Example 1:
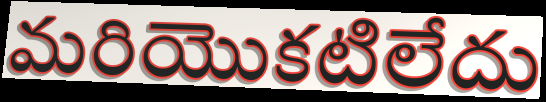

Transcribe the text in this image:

మరియొకటిలేదు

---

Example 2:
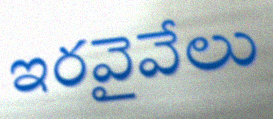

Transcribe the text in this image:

ఇరవైవేలు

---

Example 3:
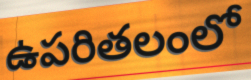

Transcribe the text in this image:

ఉపరితలంలో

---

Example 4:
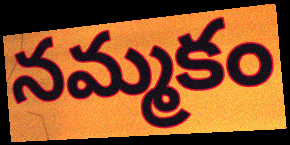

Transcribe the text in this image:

నమ్మకం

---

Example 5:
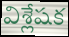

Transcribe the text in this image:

విశ్లేషక